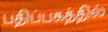
பதிப்பகத்தில்